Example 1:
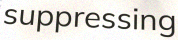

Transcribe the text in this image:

suppressing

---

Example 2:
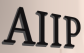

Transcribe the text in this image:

AIIP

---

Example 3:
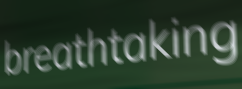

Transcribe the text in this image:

breathtaking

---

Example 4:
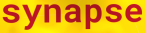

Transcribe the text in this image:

synapse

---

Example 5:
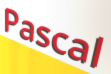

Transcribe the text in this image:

Pascal